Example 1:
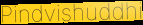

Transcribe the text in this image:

Pindvishuddhi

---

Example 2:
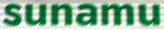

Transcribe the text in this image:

sunamu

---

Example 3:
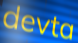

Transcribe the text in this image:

devta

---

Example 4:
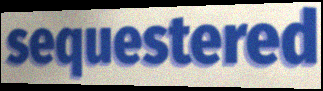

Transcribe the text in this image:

sequestered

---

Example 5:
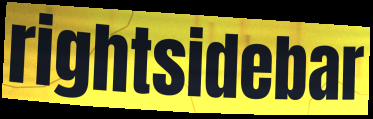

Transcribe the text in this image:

rightsidebar